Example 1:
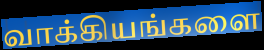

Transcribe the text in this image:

வாக்கியங்களை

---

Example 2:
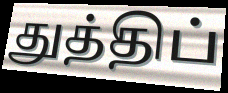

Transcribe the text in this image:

துத்திப்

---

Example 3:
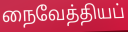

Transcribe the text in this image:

நைவேத்தியப்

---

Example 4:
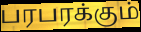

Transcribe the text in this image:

பரபரக்கும்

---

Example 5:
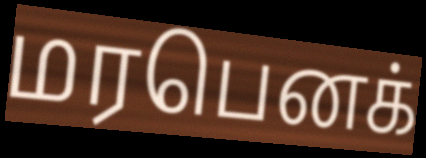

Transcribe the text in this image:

மரபெனக்